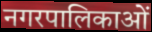
नगरपालिकाओं